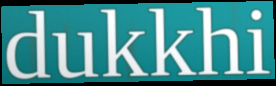
dukkhi